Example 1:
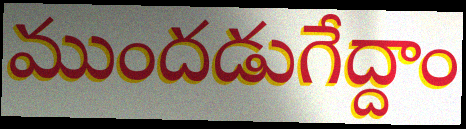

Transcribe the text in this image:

ముందడుగేద్దాం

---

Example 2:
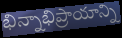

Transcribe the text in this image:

భిన్నాభిప్రాయాన్ని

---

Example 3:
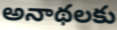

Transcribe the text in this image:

అనాథలకు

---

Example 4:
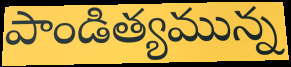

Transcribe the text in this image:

పాండిత్యమున్న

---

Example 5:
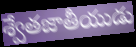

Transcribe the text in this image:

శ్వేతజాతీయుడు